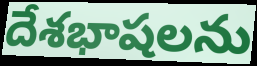
దేశభాషలను